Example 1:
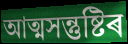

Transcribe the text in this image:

আত্মসন্তুষ্টিৰ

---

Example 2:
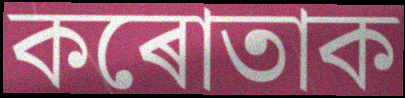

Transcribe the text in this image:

কৰোতাক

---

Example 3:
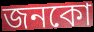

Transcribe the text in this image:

জনকো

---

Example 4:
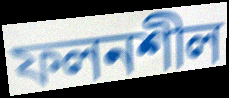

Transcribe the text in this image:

ফলনশীল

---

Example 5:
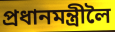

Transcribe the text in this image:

প্ৰধানমন্ত্ৰীলৈ